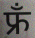
फ्रँ